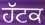
ਹੱਟਕ